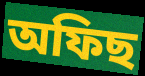
অফিছ